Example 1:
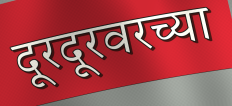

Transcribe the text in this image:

दूरदूरवरच्या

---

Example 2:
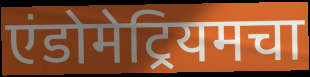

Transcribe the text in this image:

एंडोमेट्रियमचा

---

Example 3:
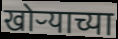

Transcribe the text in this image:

खोऱ्याच्या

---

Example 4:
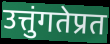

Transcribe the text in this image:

उत्तुंगतेप्रत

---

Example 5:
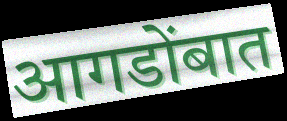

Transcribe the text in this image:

आगडोंबात